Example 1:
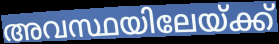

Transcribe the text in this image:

അവസ്ഥയിലേയ്ക്ക്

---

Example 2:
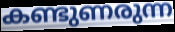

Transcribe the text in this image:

കണ്ടുണരുന്ന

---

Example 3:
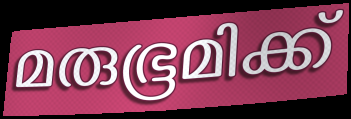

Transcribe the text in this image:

മരുഭൂമിക്ക്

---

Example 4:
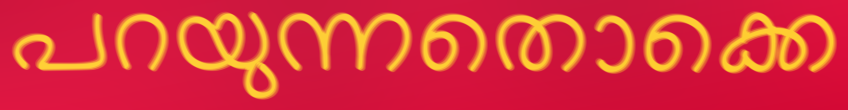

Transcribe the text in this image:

പറയുന്നതൊക്കെ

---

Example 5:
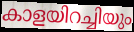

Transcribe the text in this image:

കാളയിറച്ചിയും